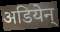
अडियेन्